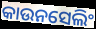
କାଉନସେଲିଂ